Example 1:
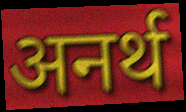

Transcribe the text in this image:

अनर्थ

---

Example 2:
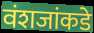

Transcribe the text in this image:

वंशजांकडे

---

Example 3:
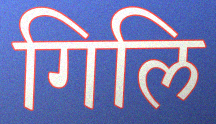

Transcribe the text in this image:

गिलि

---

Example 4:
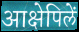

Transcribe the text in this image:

आक्षेपिलें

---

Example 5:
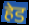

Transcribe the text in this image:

हेड